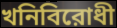
খনিবিরোধী